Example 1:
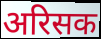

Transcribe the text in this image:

अरिसक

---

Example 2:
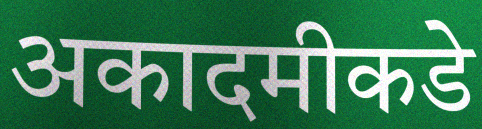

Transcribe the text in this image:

अकादमीकडे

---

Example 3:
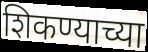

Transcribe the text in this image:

शिकण्याच्या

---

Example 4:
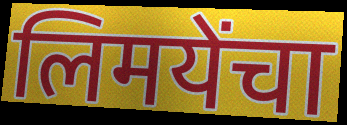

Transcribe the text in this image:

लिमयेंचा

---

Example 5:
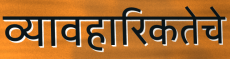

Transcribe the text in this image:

व्यावहारिकतेचे